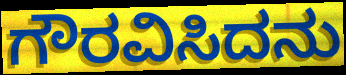
ಗೌರವಿಸಿದನು